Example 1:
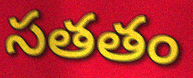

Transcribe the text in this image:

సతతం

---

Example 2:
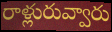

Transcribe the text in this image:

రాళ్లురువ్వారు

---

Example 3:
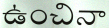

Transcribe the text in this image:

ఉంచినా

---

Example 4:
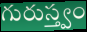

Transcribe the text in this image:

గురుస్త్వం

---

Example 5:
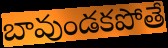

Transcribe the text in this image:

బావుండకపోతే